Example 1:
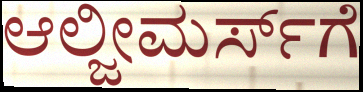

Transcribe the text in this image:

ಆಲ್ಜೀಮರ್ಸ್‌ಗೆ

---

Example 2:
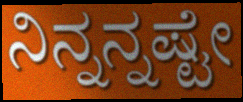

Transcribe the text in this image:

ನಿನ್ನನ್ನಷ್ಟೇ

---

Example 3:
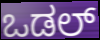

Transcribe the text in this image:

ಒಡಲ್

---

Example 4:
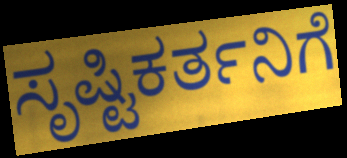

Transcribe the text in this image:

ಸೃಷ್ಟಿಕರ್ತನಿಗೆ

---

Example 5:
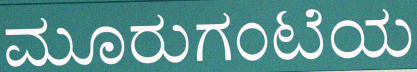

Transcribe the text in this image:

ಮೂರುಗಂಟೆಯ